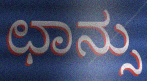
ಛಾನ್ಸು